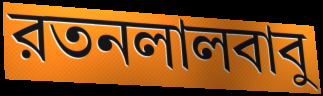
রতনলালবাবু